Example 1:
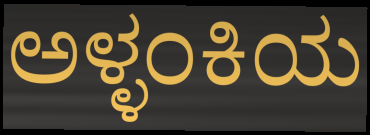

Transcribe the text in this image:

ಅಳ್ಳಂಕಿಯ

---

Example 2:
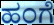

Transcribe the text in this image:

ಹಂಗೆ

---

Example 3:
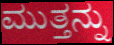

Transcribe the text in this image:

ಮುತ್ತನ್ನು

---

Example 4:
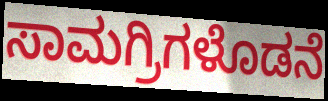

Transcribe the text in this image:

ಸಾಮಗ್ರಿಗಳೊಡನೆ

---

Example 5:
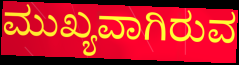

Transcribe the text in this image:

ಮುಖ್ಯವಾಗಿರುವ